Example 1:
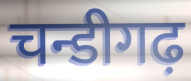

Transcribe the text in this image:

चन्डीगढ़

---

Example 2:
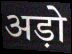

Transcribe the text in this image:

अड़ो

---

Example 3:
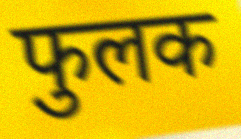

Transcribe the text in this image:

फुलक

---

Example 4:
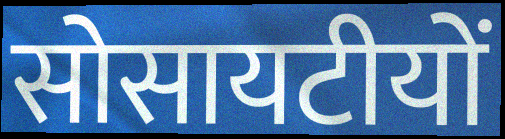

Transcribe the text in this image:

सोसायटीयों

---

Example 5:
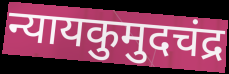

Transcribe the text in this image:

न्यायकुमुदचंद्र